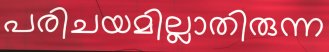
പരിചയമില്ലാതിരുന്ന